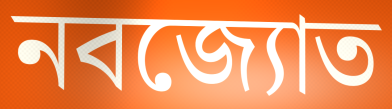
নবজ্যোত